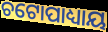
ଚଟୋପାଧ୍ୟାୟ